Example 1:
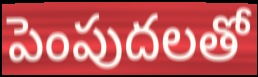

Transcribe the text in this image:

పెంపుదలతో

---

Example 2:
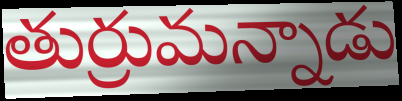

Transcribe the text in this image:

తుర్రుమన్నాడు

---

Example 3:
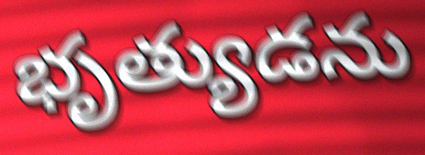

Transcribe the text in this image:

భృత్యుడను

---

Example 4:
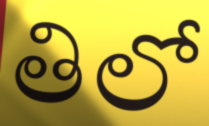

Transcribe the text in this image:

తిలో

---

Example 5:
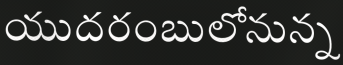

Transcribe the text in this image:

యుదరంబులోనున్న